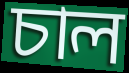
চাল